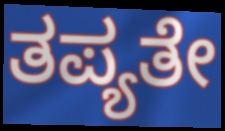
ತಪ್ಯತೇ